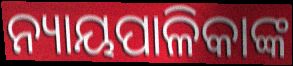
ନ୍ୟାୟପାଳିକାଙ୍କ